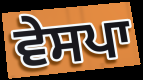
ਵੇਸਪਾ